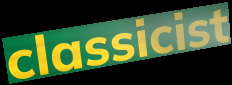
classicist